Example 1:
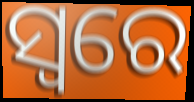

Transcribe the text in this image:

ସ୍ୱରେ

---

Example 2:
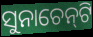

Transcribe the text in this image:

ସୁନାଚେନ୍‍ଟି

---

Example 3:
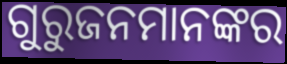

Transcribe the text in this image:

ଗୁରୁଜନମାନଙ୍କର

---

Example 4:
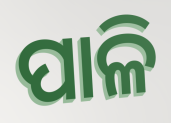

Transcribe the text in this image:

ପାଳି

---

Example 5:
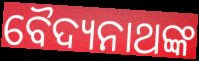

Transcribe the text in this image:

ବୈଦ୍ୟନାଥଙ୍କ